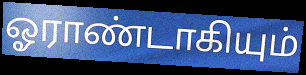
ஓராண்டாகியும்